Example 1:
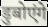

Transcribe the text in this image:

डुबोएंगे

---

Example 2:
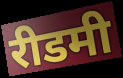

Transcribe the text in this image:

रीडमी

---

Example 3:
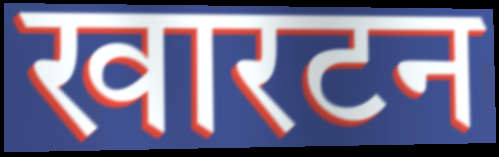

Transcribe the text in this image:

खारटन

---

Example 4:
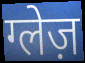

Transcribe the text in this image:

ग्लेज़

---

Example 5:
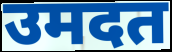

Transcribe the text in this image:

उमदत